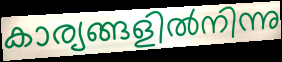
കാര്യങ്ങളിൽനിന്നു